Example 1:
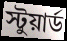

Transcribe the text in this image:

স্টুয়ার্ড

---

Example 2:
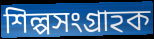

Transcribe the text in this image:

শিল্পসংগ্রাহক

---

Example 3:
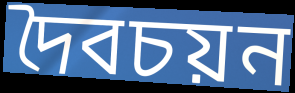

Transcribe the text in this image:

দৈবচয়ন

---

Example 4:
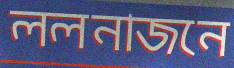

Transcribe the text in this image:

ললনাজনে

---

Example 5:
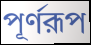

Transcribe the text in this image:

পূর্ণরূপ